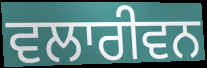
ਵਲਾਰੀਵਨ